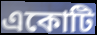
একোটি